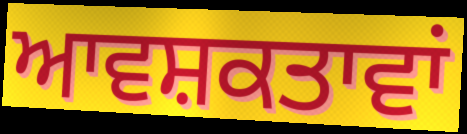
ਆਵਸ਼ਕਤਾਵਾਂ